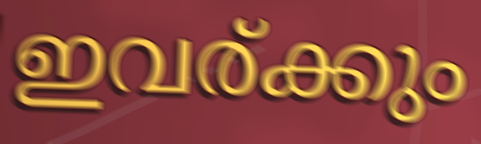
ഇവര്ക്കും